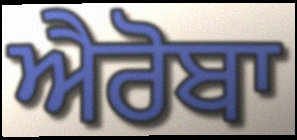
ਐਰੋਬਾ